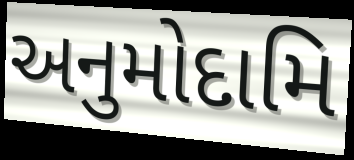
અનુમોદામિ